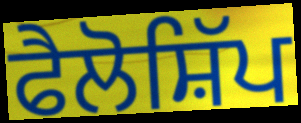
ਫੈਲੋਸ਼ਿੱਪ